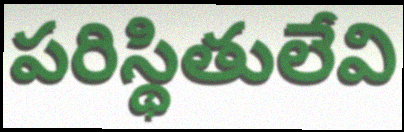
పరిస్థితులేవి